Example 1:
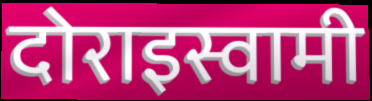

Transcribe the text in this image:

दोराइस्वामी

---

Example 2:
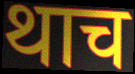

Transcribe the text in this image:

थाच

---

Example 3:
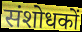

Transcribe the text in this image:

संशोधकों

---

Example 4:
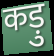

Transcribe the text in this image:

कड़ु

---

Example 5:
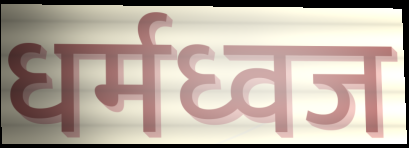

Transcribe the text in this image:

धर्मध्वज